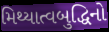
મિથ્યાત્વબુદ્ધિનો